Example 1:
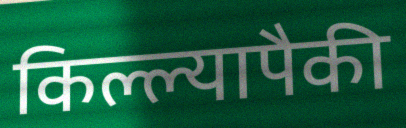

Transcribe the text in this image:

किल्ल्यापैकी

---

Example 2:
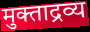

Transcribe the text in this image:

मुक्ताद्रव्य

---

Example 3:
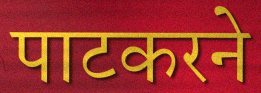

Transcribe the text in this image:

पाटकरने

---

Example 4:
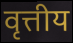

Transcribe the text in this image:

वृत्तीय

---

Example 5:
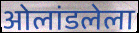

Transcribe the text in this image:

ओलांडलेला